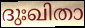
ദുഃഖിതാ